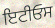
ਇਟੀਓਸ